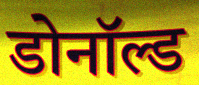
डोनॉल्ड